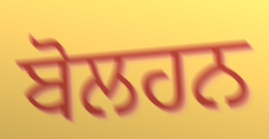
ਬੋਲਹਨ